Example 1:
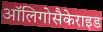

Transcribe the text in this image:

ऑलिगोसैकेराइड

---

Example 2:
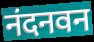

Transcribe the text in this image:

नंदनवन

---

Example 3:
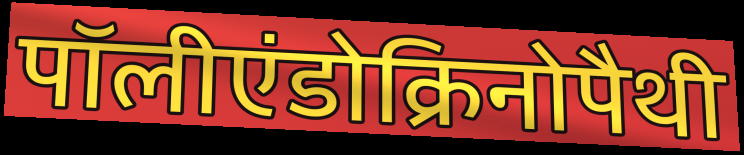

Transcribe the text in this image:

पॉलीएंडोक्रिनोपैथी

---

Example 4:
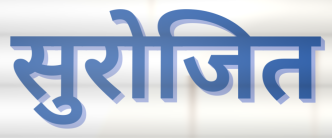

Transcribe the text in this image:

सुरोजित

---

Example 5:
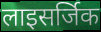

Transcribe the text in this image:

लाइसर्जिक